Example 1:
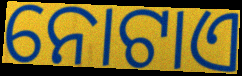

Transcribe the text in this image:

ନୋଟାଏ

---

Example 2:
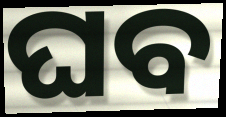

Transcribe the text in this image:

ଘବ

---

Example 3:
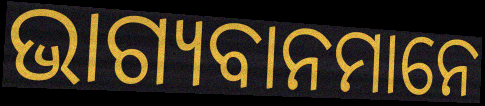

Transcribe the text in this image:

ଭାଗ୍ୟବାନମାନେ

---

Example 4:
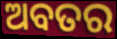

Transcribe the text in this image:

ଅବତର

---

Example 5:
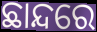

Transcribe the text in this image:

ଛାନ୍ଦରେ